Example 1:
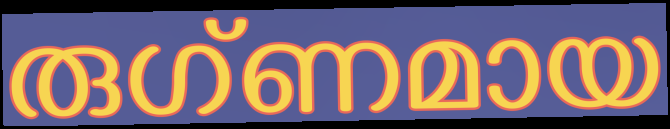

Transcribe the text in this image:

രുഗ്ണമായ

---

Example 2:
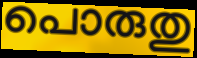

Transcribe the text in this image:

പൊരുതു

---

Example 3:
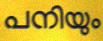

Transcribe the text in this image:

പനിയും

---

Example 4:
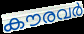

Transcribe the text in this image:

കൗരവർ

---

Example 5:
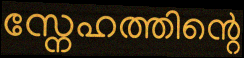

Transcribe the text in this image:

സ്നേഹത്തിന്റെ